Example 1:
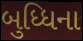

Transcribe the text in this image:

બુધ્ધિના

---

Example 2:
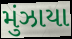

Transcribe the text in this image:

મુંઝાયા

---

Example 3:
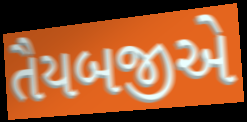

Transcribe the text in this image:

તૈયબજીએ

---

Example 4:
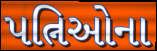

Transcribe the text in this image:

પત્નિઓના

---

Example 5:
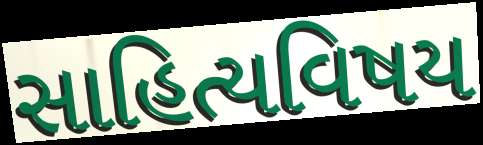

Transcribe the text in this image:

સાહિત્યવિષય